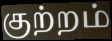
குற்றம்